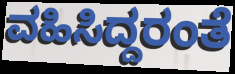
ವಹಿಸಿದ್ದರಂತೆ